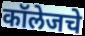
कॉलेजचे